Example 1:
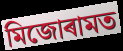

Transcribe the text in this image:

মিজোৰামত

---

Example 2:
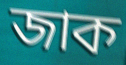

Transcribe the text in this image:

জাক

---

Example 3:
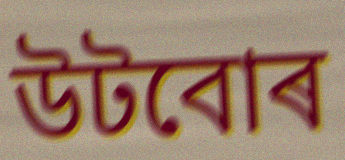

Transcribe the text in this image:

উটবোৰ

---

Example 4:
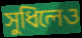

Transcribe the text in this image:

সুধিলেও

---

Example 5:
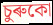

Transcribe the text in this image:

চুৰুকো